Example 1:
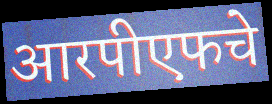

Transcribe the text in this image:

आरपीएफचे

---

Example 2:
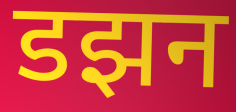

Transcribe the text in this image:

डझन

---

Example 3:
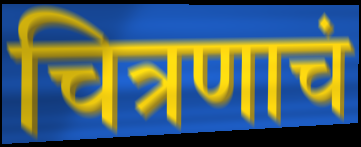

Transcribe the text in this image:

चित्रणाचं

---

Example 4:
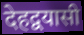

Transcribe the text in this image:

देहद्वयासी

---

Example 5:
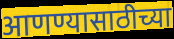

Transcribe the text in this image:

आणण्यासाठीच्या